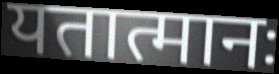
यतात्मानः